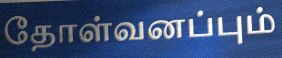
தோள்வனப்பும்